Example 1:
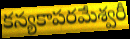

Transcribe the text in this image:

కన్యకాపరమేశ్వరీ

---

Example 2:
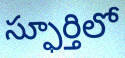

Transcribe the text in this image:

స్ఫూర్తిలో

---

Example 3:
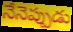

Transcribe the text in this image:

నేనెప్పుడు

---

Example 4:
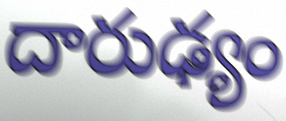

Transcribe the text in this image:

దారుఢ్యం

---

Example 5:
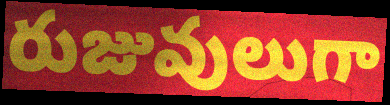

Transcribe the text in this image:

రుజువులుగా